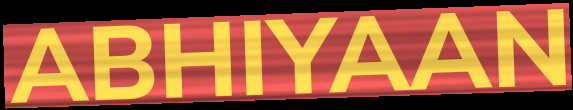
ABHIYAAN